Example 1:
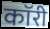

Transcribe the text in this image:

कॉरी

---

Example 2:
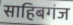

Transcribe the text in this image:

साहिबगंज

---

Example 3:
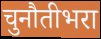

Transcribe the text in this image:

चुनौतीभरा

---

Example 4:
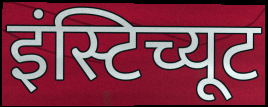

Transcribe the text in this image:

इंस्टिच्यूट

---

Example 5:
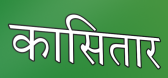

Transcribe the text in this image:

कासितार